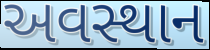
અવસ્થાન